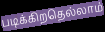
படிக்கிறதெல்லாம்